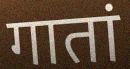
गातां